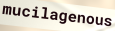
mucilagenous